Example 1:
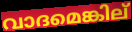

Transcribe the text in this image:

വാദമെങ്കില്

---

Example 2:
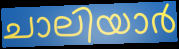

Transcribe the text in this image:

ചാലിയാർ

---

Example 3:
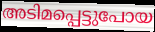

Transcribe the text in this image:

അടിമപ്പെട്ടുപോയ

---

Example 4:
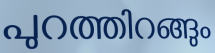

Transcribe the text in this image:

പുറത്തിറങ്ങും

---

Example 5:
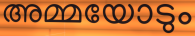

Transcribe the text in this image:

അമ്മയോടും